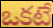
ఒకటే